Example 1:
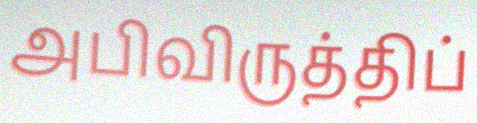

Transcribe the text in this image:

அபிவிருத்திப்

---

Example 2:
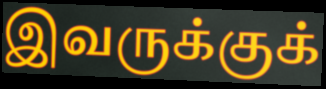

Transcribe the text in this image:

இவருக்குக்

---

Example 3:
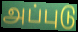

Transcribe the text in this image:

அப்புடு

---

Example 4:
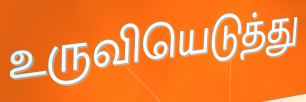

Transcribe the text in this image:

உருவியெடுத்து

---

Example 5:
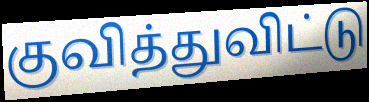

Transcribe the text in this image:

குவித்துவிட்டு